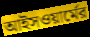
আইসওয়ার্মের